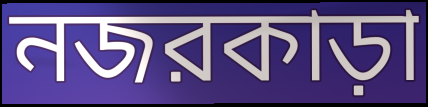
নজরকাড়া